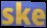
ske